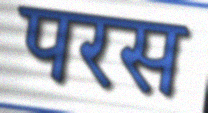
परस